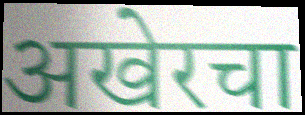
अखेरचा